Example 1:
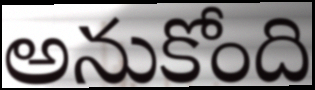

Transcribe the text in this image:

అనుకోంది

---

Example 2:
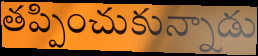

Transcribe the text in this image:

తప్పించుకున్నాడు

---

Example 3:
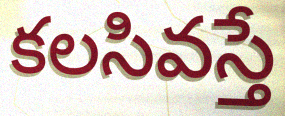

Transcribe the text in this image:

కలసివస్తే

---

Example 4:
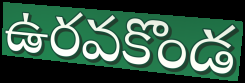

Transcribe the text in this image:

ఉరవకొండ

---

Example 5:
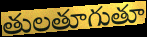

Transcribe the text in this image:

తులతూగుతూ